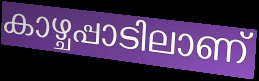
കാഴ്ചപ്പാടിലാണ്